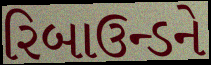
રિબાઉન્ડને